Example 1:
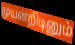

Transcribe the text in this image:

முயன்றிடினும்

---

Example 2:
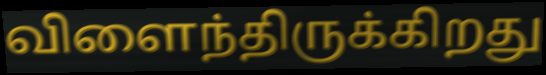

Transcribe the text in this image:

விளைந்திருக்கிறது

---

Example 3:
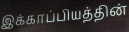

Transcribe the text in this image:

இக்காப்பியத்தின்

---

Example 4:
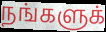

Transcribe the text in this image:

நங்களுக்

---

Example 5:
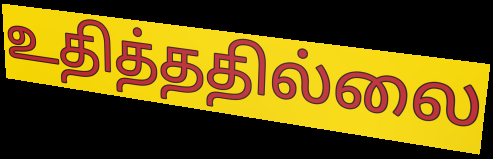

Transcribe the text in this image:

உதித்ததில்லை